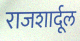
राजशार्दूल